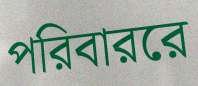
পরিবাররে